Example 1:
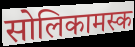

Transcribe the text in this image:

सोलिकामस्क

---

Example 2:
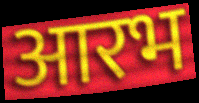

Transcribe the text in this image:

आरभ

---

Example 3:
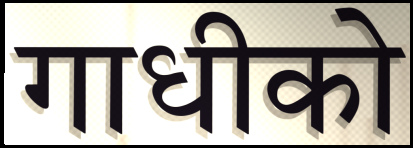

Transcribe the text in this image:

गाधीको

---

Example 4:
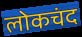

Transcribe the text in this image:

लोकचंद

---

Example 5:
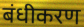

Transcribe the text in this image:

बंधीकरण